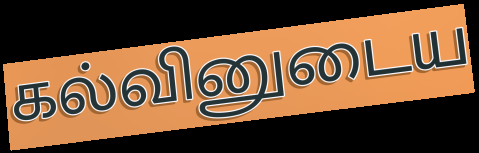
கல்வினுடைய